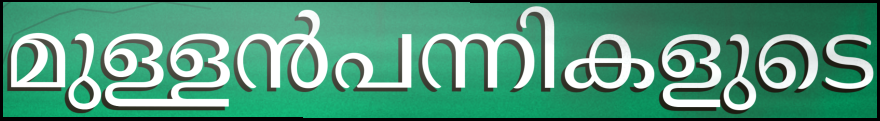
മുള്ളൻപന്നികളുടെ